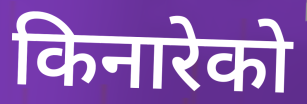
किनारेको